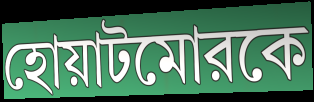
হোয়াটমোরকে